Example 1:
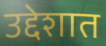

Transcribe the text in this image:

उद्देशात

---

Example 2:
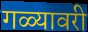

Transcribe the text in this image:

गळ्यावरी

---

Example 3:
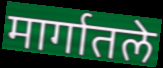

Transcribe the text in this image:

मार्गातले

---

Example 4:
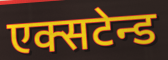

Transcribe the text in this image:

एक्सटेन्ड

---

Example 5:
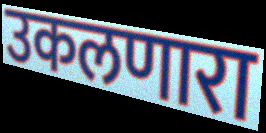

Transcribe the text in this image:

उकलणारा